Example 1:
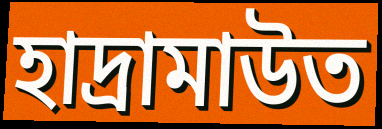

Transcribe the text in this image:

হাদ্রামাউত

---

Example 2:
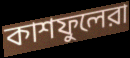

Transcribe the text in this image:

কাশফুলেরা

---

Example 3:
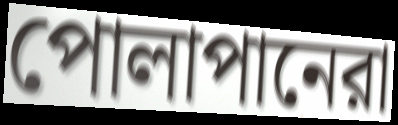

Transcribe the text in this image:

পোলাপানেরা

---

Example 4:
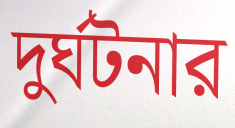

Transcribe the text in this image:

দুর্ঘটনার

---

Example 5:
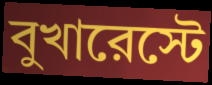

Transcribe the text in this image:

বুখারেস্টে